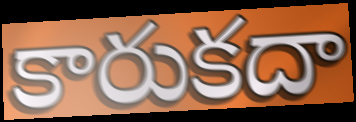
కారుకదా